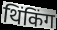
थिंकिंग